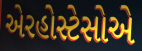
એરહોસ્ટેસોએ